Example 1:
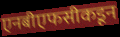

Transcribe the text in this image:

एनबीएफसीकडून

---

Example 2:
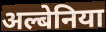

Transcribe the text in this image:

अल्बेनिया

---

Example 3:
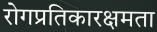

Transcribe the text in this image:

रोगप्रतिकारक्षमता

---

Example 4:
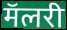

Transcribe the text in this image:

मॅलरी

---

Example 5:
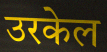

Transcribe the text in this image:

उरकेल